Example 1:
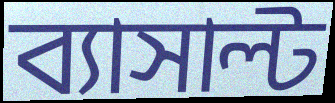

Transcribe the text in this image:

ব্যাসাল্ট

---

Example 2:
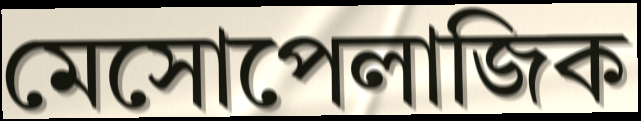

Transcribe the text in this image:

মেসোপেলাজিক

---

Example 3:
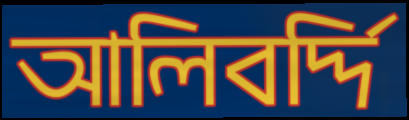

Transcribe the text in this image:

আলিবর্দ্দি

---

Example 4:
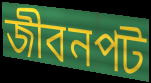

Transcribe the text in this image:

জীবনপট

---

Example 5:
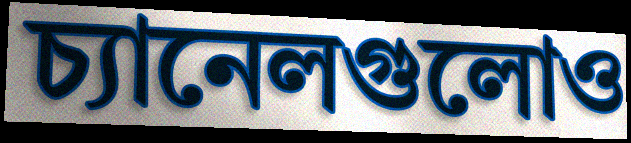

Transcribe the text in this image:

চ্যানেলগুলোও